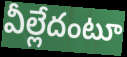
వీల్లేదంటూ